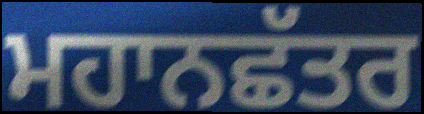
ਮਹਾਨਛੱਤਰ